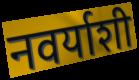
नवर्याशी